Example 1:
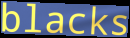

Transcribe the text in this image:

blacks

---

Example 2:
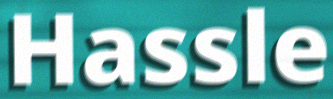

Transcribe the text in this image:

Hassle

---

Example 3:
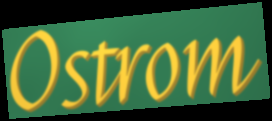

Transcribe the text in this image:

Ostrom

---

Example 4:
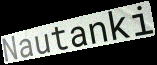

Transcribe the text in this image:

Nautanki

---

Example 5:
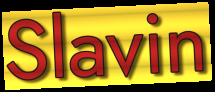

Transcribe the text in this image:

Slavin